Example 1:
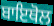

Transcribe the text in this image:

ਬਾਇਥੋਲ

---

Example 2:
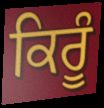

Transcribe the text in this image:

ਕਿਰੂੰ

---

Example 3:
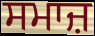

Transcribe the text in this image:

ਸਮਾਜ਼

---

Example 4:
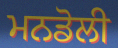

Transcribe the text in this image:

ਮਨਡੋਲੀ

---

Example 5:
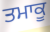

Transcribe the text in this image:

ਤਮਾਕੂ